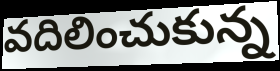
వదిలించుకున్న